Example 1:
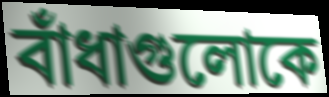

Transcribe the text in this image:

বাঁধাগুলোকে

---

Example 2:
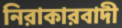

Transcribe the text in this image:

নিরাকারবাদী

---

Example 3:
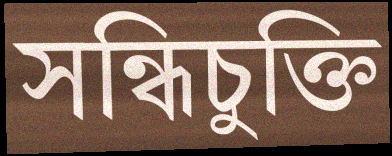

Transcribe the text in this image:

সন্ধিচুক্তি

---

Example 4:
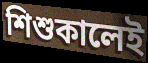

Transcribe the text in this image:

শিশুকালেই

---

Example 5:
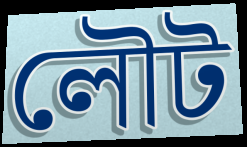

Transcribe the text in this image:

লৌট